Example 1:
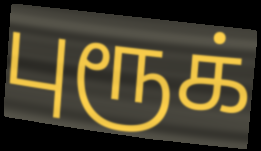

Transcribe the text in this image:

புரூக்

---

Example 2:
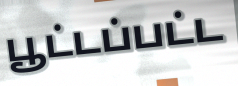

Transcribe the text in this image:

பூட்டப்பட்ட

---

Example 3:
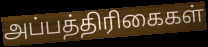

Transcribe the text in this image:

அப்பத்திரிகைகள்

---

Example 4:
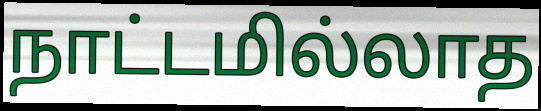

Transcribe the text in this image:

நாட்டமில்லாத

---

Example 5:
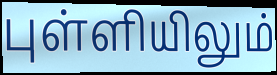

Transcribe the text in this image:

புள்ளியிலும்